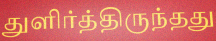
துளிர்த்திருந்தது